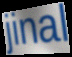
jinal